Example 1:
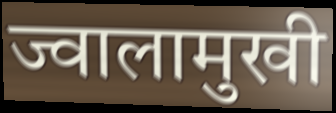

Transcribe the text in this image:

ज्‍वालामुखी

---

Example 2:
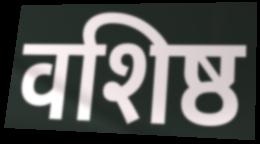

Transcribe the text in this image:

वशिष्ठ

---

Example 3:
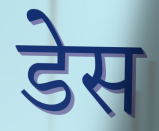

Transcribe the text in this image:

डेस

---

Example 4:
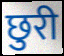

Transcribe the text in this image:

छुरी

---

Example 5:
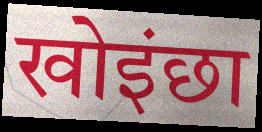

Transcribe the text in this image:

खोइंछा